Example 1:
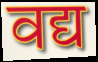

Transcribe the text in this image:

वद्य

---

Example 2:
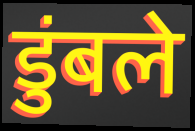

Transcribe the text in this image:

डुंबले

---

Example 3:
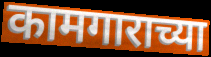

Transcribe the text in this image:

कामगाराच्या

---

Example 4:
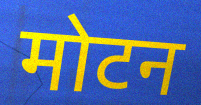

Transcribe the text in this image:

मोटन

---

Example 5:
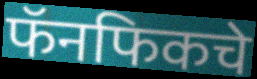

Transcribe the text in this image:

फॅनफिकचे